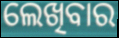
ଲେଖିବାର